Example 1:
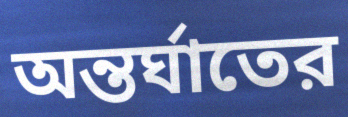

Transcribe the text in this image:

অন্তর্ঘাতের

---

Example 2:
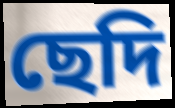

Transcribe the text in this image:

ছেদি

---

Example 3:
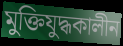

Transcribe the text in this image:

মুক্তিযুদ্ধকালীন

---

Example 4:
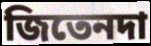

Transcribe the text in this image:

জিতেনদা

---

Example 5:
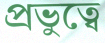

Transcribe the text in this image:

প্রভুত্বে